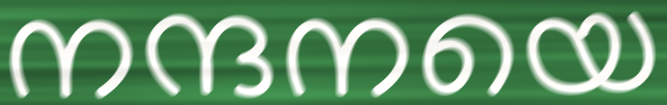
നന്ദനയെ